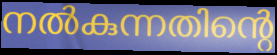
നൽകുന്നതിന്റെ